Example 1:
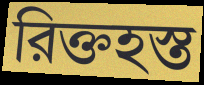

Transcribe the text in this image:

রিক্তহস্ত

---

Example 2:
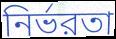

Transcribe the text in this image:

নির্ভরতা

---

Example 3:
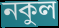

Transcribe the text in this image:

নকুল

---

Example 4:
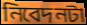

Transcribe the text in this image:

নিবেদনটা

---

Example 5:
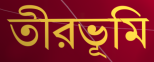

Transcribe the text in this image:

তীরভূমি